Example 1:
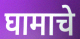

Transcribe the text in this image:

घामाचे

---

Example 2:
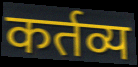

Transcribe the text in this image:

कर्तव्य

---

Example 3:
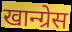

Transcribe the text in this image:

खान्ग्रेस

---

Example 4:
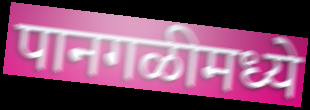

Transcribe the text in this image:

पानगळीमध्ये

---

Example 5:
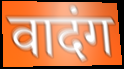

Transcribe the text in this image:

वादंग